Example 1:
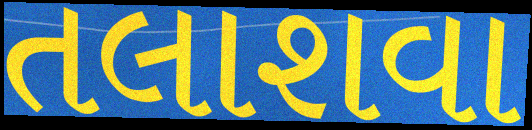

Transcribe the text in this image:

તલાશવા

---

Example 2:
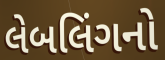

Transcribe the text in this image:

લેબલિંગનો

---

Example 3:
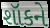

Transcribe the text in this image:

શૉકને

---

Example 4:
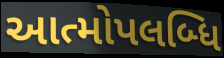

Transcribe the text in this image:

આત્મોપલબ્ધિ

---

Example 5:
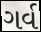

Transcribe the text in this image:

ગર્વ